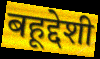
बहूद्देशी